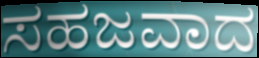
ಸಹಜವಾದ